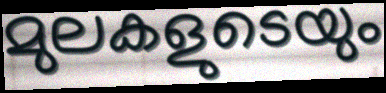
മുലകളുടെയും